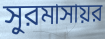
সুরমাসায়র